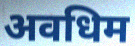
अवधिम